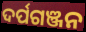
ଦର୍ପଗଞ୍ଜନ